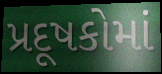
પ્રદૂષકોમાં